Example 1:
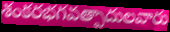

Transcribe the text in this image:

శంకరభగవత్పాదులవారు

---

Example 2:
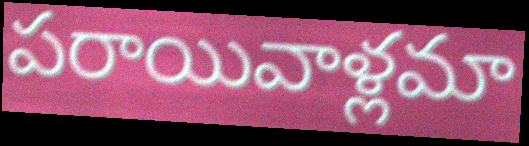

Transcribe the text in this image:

పరాయివాళ్లమా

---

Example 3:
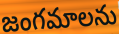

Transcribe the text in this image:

జంగమాలను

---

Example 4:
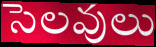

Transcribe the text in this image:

సెలవులు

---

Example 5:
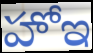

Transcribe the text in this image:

హోఇ